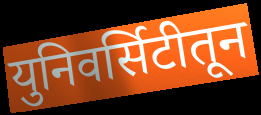
युनिवर्सिटीतून